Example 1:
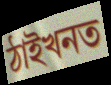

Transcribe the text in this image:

ঠাইখনত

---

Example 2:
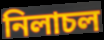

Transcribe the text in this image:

নিলাচল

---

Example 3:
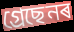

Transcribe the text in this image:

গ্ৰেছেনৰ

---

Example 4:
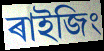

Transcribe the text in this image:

ৰাইজিং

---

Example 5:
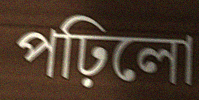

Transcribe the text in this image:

পঢ়িলো